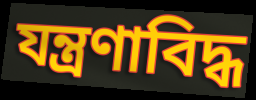
যন্ত্রণাবিদ্ধ